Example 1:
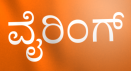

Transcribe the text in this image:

ವೈರಿಂಗ್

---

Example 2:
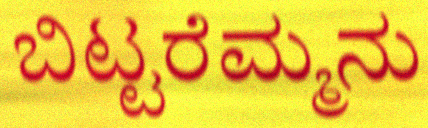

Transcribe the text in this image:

ಬಿಟ್ಟರೆಮ್ಮನು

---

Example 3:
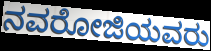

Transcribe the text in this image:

ನವರೋಜಿಯವರು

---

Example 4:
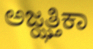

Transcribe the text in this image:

ಅಜ್ಝತ್ತಿಕಾ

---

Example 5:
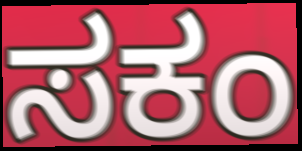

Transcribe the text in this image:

ಸಕಂ